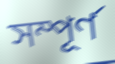
সম্পূৰ্ণ